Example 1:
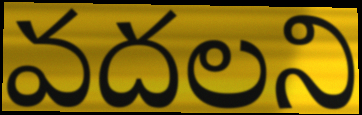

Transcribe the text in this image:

వదలని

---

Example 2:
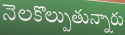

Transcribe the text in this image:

నెలకొల్పుతున్నారు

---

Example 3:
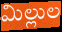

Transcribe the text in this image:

మిల్లుల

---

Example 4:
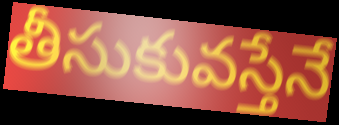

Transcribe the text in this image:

తీసుకువస్తేనే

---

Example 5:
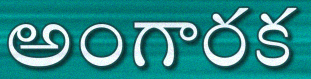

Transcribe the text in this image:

అంగారక